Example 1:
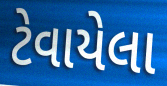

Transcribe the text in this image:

ટેવાયેલા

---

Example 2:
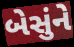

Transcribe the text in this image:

બેસુંને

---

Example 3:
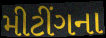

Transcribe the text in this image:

મીટીંગના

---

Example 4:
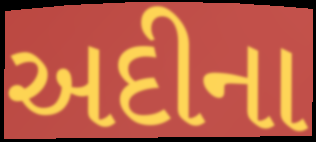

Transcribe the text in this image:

અદીના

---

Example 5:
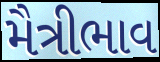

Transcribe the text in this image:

મૈત્રીભાવ